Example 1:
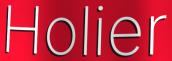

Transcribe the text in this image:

Holier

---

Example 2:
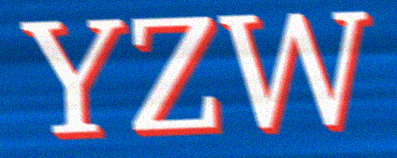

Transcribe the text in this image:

YZW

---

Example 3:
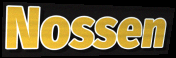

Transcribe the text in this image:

Nossen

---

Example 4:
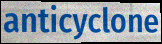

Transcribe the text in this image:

anticyclone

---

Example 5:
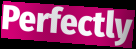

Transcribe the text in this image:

Perfectly